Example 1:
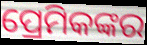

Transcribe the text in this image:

ପ୍ରେମିକଙ୍କର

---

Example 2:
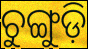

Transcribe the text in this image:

ଚୁଙ୍ଗୁଡ଼ି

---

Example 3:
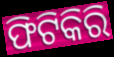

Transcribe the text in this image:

ଫିଟିକିରି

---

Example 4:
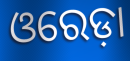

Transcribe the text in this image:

ଓରେଡ଼ା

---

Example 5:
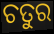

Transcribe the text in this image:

ଚତୁର